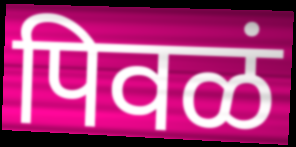
पिवळं